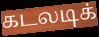
கடலடிக்